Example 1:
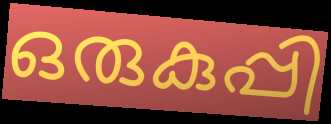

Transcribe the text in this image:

ഒരുകുപ്പി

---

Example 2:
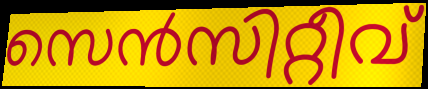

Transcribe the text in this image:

സെൻസിറ്റീവ്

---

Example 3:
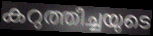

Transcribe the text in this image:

കറുത്തീച്ചയുടെ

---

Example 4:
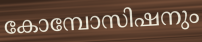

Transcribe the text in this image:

കോമ്പോസിഷനും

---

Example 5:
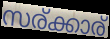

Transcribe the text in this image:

സര്ക്കാര്